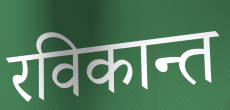
रविकान्त